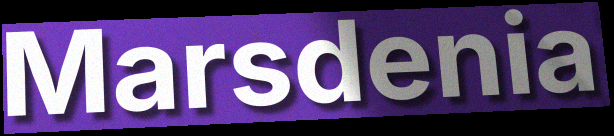
Marsdenia